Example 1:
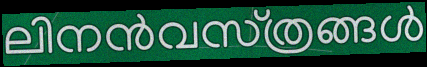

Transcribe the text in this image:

ലിനൻവസ്‌ത്രങ്ങൾ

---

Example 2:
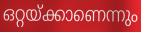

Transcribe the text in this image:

ഒറ്റയ്ക്കാണെന്നും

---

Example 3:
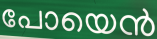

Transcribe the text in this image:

പോയെൻ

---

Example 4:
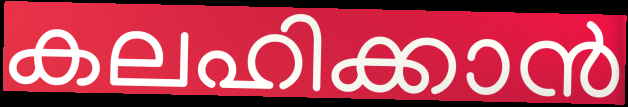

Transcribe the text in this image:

കലഹിക്കാൻ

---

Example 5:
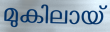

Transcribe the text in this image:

മുകിലായ്